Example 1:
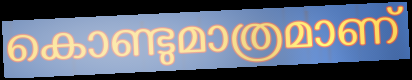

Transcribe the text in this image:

കൊണ്ടുമാത്രമാണ്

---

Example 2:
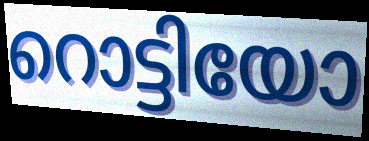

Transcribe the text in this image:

റൊട്ടിയോ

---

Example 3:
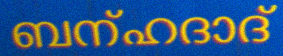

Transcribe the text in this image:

ബന്ഹദാദ്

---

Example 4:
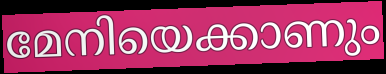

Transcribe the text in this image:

മേനിയെക്കാണും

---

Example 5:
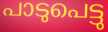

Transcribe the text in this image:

പാടുപെട്ടു